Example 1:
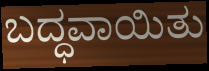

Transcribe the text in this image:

ಬದ್ಧವಾಯಿತು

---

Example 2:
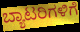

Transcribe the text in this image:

ಬ್ಯಾಟರಿಗಳಿಗೆ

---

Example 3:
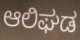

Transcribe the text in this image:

ಆಲಿಘಡ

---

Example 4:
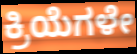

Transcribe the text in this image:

ಕ್ರಿಯೆಗಳೇ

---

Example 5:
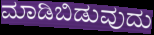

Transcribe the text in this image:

ಮಾಡಿಬಿಡುವುದು